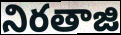
నిరతాజి